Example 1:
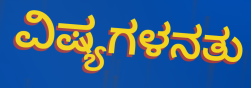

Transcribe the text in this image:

ವಿಷ್ಯಗಳನತು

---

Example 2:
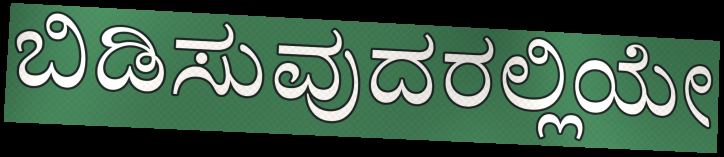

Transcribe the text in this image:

ಬಿಡಿಸುವುದರಲ್ಲಿಯೇ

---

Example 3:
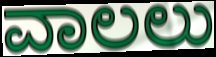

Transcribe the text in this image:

ವಾಲಲು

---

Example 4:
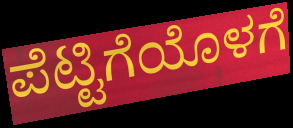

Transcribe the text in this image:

ಪೆಟ್ಟಿಗೆಯೊಳಗೆ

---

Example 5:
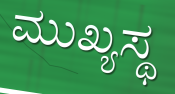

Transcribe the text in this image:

ಮುಖ್ಯಸ್ಥ